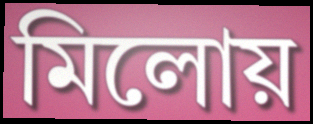
মিলোয়